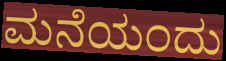
ಮನೆಯಂದು